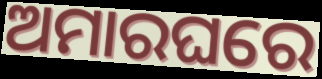
ଅମାରଘରେ